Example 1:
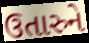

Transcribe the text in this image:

ઉતારુને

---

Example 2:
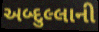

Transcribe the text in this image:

અબ્દુલ્લાની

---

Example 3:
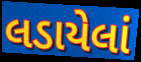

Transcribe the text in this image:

લડાયેલાં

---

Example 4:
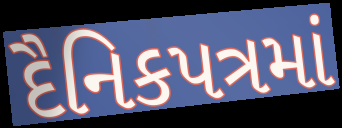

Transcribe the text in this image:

દૈનિકપત્રમાં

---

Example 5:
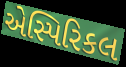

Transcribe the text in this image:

એસ્પિરિકલ